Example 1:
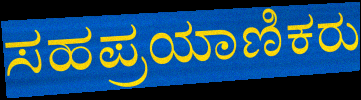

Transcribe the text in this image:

ಸಹಪ್ರಯಾಣಿಕರು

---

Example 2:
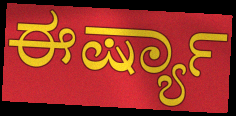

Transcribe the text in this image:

ಈರ್ಷ್ಯಾ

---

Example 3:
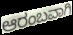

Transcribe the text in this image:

ಆರಂಬವಾಗಿ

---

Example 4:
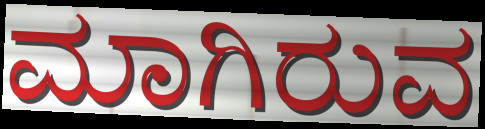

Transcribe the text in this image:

ಮಾಗಿರುವ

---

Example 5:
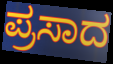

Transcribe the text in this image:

ಪ್ರಸಾದ